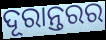
ଦୂରାନ୍ତରର